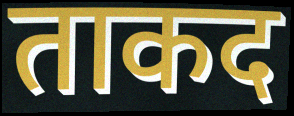
ताकद